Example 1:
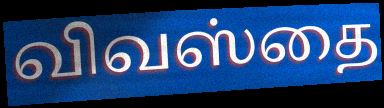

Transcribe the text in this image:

விவஸ்தை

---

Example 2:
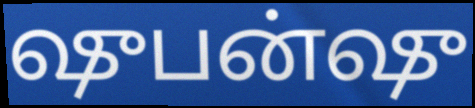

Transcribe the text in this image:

ஷுபன்ஷு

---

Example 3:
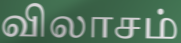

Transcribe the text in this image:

விலாசம்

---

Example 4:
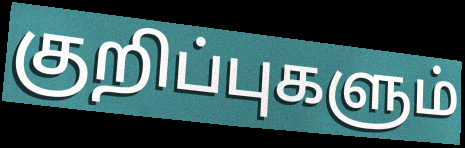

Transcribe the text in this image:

குறிப்புகளும்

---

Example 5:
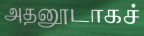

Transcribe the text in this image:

அதனூடாகச்